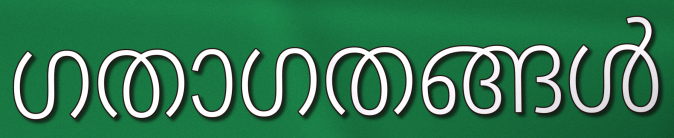
ഗതാഗതങ്ങൾ